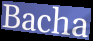
Bacha